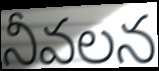
నీవలన